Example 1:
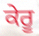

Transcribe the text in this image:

ਕੇਰੂ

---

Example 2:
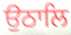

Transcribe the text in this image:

ਉਠਾਲਿ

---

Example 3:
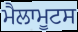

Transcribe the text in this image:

ਮੈਲਾਮੂਟਸ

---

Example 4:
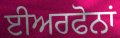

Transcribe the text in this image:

ਈਅਰਫੋਨਾਂ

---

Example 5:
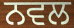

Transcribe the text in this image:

ਨਵਲ